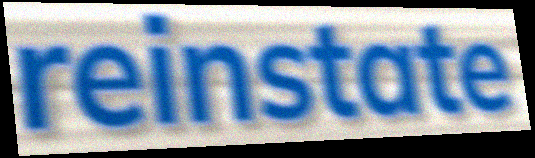
reinstate